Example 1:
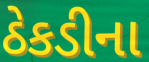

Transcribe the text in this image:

ઠેકડીના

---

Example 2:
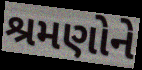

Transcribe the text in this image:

શ્રમણોને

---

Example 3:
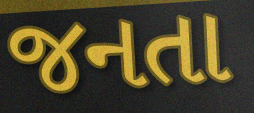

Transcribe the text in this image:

જનતા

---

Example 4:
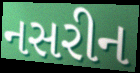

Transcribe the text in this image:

નસરીન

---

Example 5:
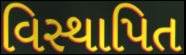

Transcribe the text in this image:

વિસ્થાપિત